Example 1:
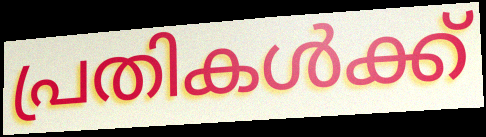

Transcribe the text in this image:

പ്രതികൾക്ക്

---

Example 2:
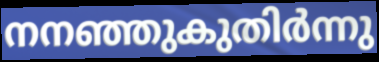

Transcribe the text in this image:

നനഞ്ഞുകുതിർന്നു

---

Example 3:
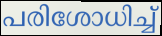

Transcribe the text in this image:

പരിശോധിച്ച്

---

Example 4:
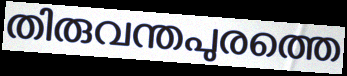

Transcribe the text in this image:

തിരുവന്തപുരത്തെ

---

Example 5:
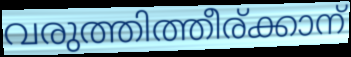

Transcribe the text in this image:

വരുത്തിത്തീര്ക്കാന്